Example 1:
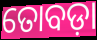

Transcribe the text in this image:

ତୋବଡ଼ା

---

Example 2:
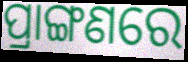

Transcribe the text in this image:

ପ୍ରାଙ୍ଗଣରେ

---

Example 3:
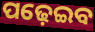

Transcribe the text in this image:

ପଢ଼େଇବ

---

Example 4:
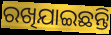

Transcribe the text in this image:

ରଖିଯାଇଛନ୍ତି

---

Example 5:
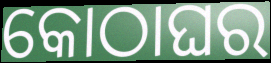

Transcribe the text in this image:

କୋଠାଘର